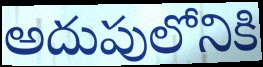
అదుపులోనికి